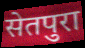
सेतपुरा